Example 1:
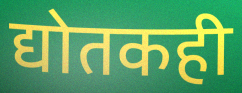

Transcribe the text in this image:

द्योतकही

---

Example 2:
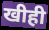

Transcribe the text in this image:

खीही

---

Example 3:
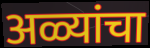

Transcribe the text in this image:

अळ्यांचा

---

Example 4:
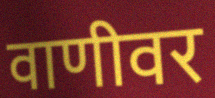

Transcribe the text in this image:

वाणीवर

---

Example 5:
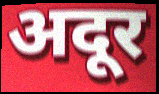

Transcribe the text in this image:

अदूर